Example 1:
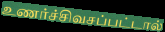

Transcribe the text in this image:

உணர்ச்சிவசப்பட்டால்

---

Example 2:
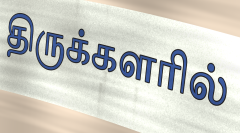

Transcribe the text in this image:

திருக்களரில்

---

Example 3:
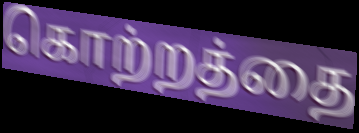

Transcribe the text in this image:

கொற்றத்தை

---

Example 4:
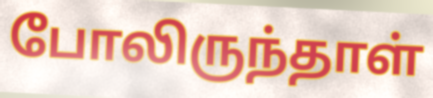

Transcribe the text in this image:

போலிருந்தாள்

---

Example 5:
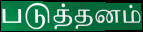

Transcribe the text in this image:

படுத்தனம்